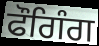
ਫੌਗਿੰਗ